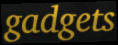
gadgets